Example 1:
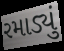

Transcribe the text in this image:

રમાડ્યું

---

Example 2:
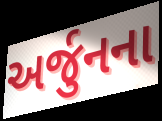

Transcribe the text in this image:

અર્જુનના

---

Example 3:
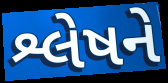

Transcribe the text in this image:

શ્લેષને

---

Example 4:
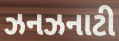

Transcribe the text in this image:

ઝનઝનાટી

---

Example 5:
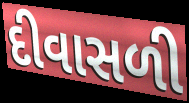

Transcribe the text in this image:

દીવાસળી